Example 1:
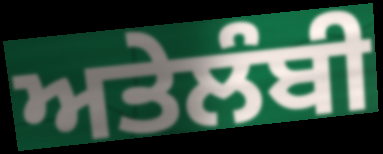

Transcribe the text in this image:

ਅਤੇਲੰਬੀ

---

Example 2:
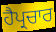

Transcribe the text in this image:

ਹੈਪ੍ਰਚਾਰ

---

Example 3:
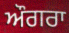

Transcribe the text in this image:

ਔਗਰਾ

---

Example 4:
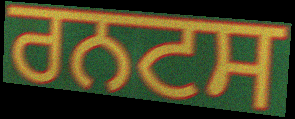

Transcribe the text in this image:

ਰਨਟਸ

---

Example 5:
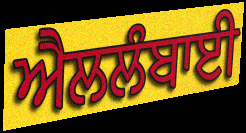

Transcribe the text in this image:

ਐਲਲੰਬਾਈ